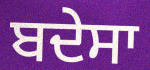
ਬਦੇਸਾ